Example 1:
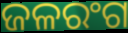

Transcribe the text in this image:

ଜଳରଂଗ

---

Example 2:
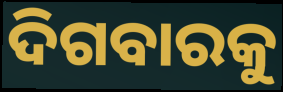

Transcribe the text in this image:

ଦିଗବାରକୁ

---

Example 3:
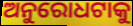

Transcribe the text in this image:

ଅନୁରୋଧଟାକୁ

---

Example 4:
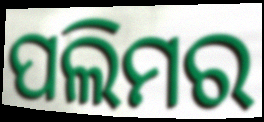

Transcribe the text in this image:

ପଲିମର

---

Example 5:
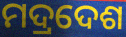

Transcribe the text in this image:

ମଦ୍ରଦେଶ